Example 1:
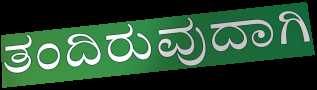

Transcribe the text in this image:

ತಂದಿರುವುದಾಗಿ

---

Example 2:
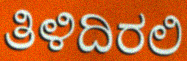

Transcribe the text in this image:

ತಿಳಿದಿರಲಿ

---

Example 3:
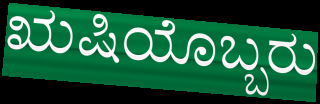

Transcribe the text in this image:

ಋಷಿಯೊಬ್ಬರು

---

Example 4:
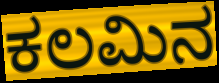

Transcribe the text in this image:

ಕಲಮಿನ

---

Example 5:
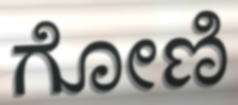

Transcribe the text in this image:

ಗೋಣಿ